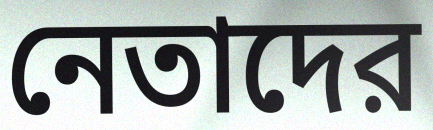
নেতাদের